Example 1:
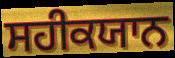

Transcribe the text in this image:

ਸਹੀਕਯਾਨ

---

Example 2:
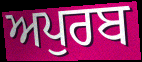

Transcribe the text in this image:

ਅਪੁਰਬ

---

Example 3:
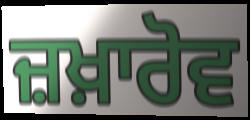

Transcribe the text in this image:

ਜ਼ਖ਼ਾਰੋਵ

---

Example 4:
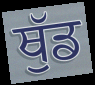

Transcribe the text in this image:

ਥੁੱਡ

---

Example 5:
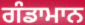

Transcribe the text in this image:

ਗੰਡਾਮਾਨ